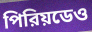
পিরিয়ডেও